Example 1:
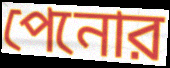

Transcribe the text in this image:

পেনোর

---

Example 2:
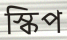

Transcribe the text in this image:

স্কিপ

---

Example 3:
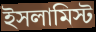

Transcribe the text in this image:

ইসলামিস্ট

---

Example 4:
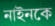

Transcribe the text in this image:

নাইনকে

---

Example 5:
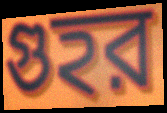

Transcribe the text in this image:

গুহর